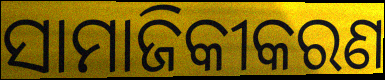
ସାମାଜିକୀକରଣ